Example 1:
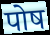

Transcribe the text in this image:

पोष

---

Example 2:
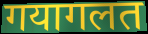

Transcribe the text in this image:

गयागलत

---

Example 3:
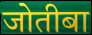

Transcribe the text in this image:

जोतीबा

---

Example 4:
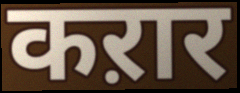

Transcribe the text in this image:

कऱार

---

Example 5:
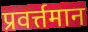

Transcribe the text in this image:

प्रवर्त्तमान